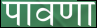
पावणा